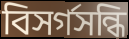
বিসর্গসন্ধি